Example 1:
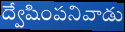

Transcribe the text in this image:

ద్వేషింపనివాడు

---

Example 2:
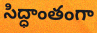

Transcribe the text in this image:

సిద్ధాంతంగా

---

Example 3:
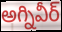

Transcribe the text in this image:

అగ్నివీర్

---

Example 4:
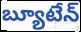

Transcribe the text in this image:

బ్యూటేన్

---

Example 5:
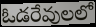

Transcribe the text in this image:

ఓడరేవులలో